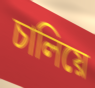
চালিয়ে